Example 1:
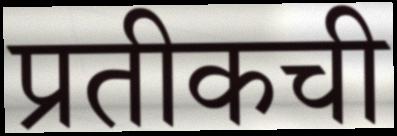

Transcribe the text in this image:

प्रतीकची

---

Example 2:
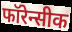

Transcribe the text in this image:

फॉरेन्सीक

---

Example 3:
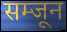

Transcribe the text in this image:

सम्जून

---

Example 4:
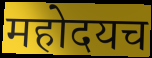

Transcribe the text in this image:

महोदयच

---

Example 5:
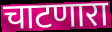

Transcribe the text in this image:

चाटणारा